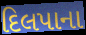
દિલપાના